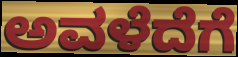
ಅವಳೆದೆಗೆ